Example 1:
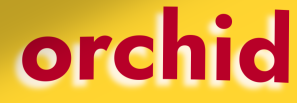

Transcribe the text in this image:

orchid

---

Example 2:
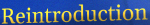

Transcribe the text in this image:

Reintroduction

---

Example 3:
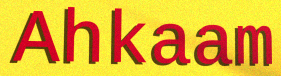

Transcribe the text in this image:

Ahkaam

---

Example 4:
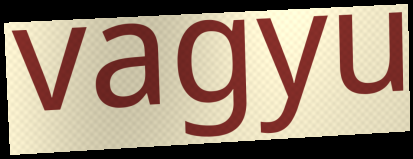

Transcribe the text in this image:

vagyu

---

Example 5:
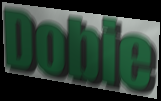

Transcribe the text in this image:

Dobie